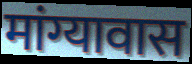
मांग्यावास